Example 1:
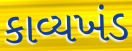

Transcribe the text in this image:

કાવ્યખંડ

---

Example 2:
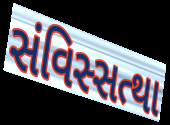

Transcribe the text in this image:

સંવિસ્સત્થા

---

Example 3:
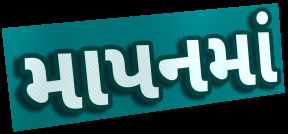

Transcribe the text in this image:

માપનમાં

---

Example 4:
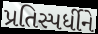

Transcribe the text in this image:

પ્રતિસ્પર્ધીને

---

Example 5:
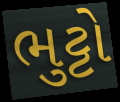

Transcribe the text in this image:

ભુટ્ટો